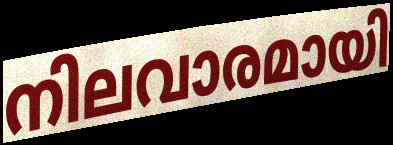
നിലവാരമായി